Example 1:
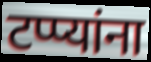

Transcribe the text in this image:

टप्प्यांना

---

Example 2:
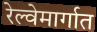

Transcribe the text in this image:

रेल्वेमार्गात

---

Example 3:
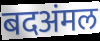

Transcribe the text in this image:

बदअंमल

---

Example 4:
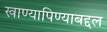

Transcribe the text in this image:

खाण्यापिण्याबद्दल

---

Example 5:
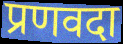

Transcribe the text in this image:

प्रणवदा